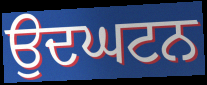
ਉਦਘਟਨ